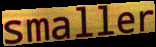
smaller